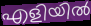
എളിയിൽ